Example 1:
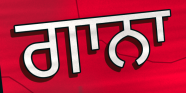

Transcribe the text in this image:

ਗਾਨਾ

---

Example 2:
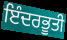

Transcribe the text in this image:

ਇੰਦਰਭੂਤੀ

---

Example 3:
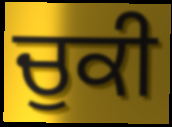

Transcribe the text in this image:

ਚੁਕੀ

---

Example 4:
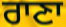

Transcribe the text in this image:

ਰਾਣਾ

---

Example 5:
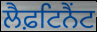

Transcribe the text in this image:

ਲੈਫ਼ਟਿਨੈਂਟ